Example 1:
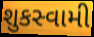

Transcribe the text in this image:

શુકસ્વામી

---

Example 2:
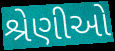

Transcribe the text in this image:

શ્રેણીઓ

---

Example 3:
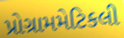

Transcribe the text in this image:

પ્રોગ્રામમેટિકલી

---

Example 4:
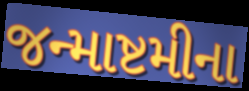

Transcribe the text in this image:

જન્માષ્ટમીના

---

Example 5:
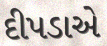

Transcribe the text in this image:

દીપડાએ